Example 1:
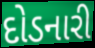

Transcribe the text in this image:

દોડનારી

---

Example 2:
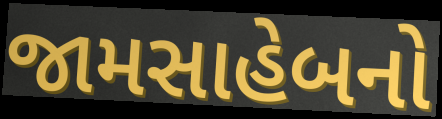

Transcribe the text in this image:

જામસાહેબનો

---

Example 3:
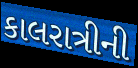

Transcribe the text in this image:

કાલરાત્રીની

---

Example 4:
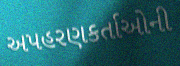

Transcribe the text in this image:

અપહરણકર્તાઓની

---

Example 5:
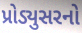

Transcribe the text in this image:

પ્રોડ્યુસરનો